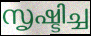
സൃഷ്ടിച്ച